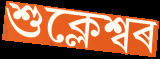
শুক্লেশ্বৰ